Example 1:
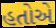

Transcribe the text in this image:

હતોએ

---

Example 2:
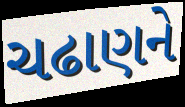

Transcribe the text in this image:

ચઢાણને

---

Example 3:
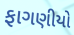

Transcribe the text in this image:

ફાગણીયો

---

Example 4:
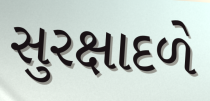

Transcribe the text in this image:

સુરક્ષાદળે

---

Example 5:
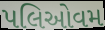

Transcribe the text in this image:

પલિઓવમ